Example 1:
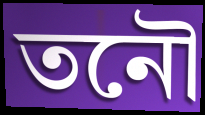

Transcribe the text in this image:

তনৌ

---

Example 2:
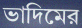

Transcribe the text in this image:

ভাদিমের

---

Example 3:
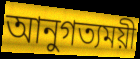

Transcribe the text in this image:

আনুগত্যময়ী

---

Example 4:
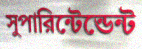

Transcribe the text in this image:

সুপারিন্টেন্ডেন্ট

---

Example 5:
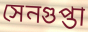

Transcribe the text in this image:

সেনগুপ্তা